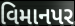
વિમાનપર